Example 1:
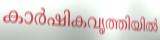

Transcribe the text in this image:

കാർഷികവൃത്തിയിൽ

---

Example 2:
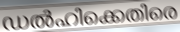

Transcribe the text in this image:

ഡൽഹിക്കെതിരെ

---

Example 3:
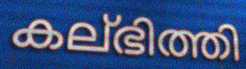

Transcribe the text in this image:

കല്ഭിത്തി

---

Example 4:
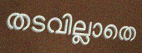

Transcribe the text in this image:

തടവില്ലാതെ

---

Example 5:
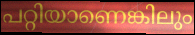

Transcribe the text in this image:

പറ്റിയാണെങ്കിലും